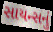
સાયન્સનું